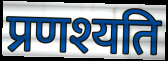
प्रणश्यति